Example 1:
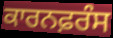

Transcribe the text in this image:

ਕਾਰਨਫ਼ਰੰਸ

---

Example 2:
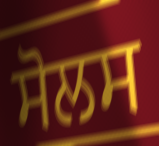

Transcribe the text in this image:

ਸੋਲਸ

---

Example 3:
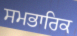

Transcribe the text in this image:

ਸਮਭਾਰਿਕ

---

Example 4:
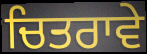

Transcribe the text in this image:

ਚਿਤਰਾਵੇ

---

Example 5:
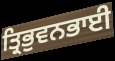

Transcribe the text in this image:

ਤ੍ਰਿਭੁਵਨਭਾਈ